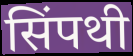
सिंपथी